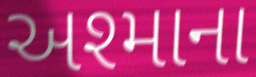
અશ્માના